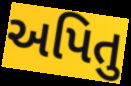
અપિતુ